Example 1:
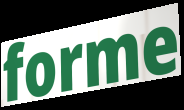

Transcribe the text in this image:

forme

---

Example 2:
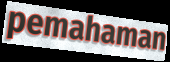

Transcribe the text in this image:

pemahaman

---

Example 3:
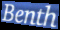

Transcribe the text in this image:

Benth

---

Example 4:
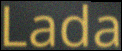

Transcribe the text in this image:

Lada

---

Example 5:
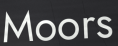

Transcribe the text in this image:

Moors